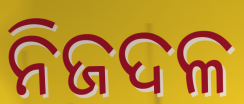
ନିଜଦଳ